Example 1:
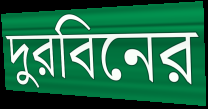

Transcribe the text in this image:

দুরবিনের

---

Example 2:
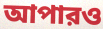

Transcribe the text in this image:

আপারও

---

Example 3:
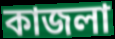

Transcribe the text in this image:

কাজলা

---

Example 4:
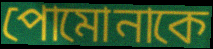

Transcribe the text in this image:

পোমোনাকে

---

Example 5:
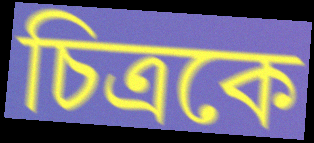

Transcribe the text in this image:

চিত্রকে